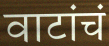
वाटांचं